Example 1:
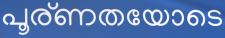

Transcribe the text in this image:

പൂര്ണതയോടെ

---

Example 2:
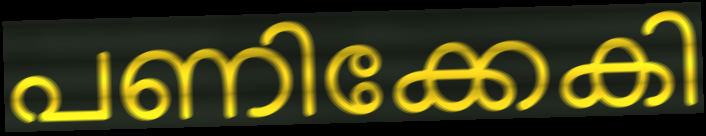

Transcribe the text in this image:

പണിക്കേകി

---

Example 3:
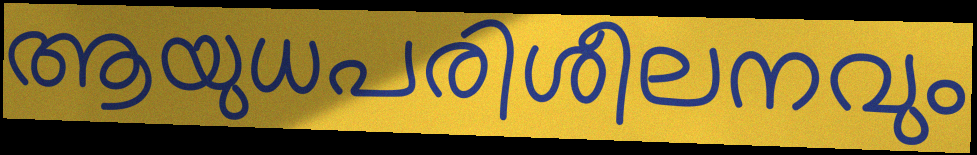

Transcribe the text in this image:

ആയുധപരിശീലനവും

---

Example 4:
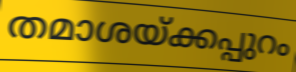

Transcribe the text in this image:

തമാശയ്ക്കപ്പുറം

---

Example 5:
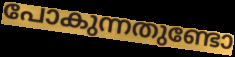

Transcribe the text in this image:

പോകുന്നതുണ്ടോ